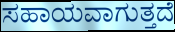
ಸಹಾಯವಾಗುತ್ತದೆ